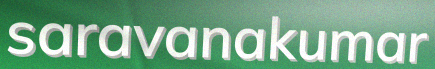
saravanakumar